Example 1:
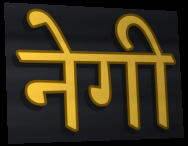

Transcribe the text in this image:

नेगी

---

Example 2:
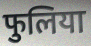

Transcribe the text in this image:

फुलिया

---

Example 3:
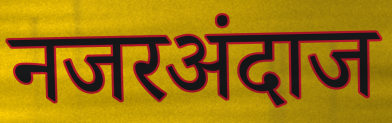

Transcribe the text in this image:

नजरअंदाज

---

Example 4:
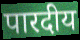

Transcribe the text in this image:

पारदीय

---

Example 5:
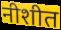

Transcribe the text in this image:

नीशीत